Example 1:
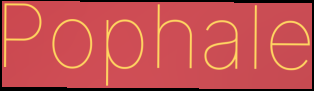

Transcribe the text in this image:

Pophale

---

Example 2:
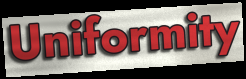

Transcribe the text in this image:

Uniformity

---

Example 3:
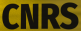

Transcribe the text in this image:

CNRS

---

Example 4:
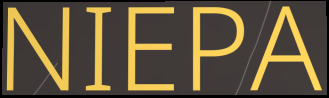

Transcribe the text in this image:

NIEPA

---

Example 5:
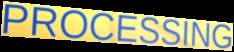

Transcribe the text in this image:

PROCESSING